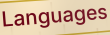
Languages